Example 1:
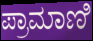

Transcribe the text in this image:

ಪ್ರಾಮಾಣಿ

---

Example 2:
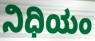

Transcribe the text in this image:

ನಿಧಿಯಂ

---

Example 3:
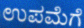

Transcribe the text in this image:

ಉಪಮೆಗೆ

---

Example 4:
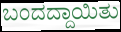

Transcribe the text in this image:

ಬಂದದ್ದಾಯಿತು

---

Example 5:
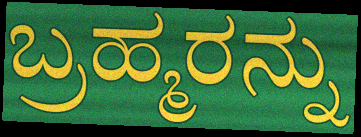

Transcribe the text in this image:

ಬ್ರಹ್ಮರನ್ನು